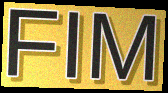
FIM